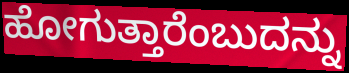
ಹೋಗುತ್ತಾರೆಂಬುದನ್ನು